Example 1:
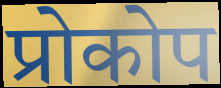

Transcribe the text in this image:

प्रोकोप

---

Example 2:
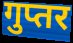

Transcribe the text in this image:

गुप्तर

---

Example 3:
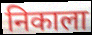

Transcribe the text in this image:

निकाला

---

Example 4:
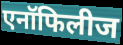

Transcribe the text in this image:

एनॉफिलीज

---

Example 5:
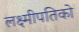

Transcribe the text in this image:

लक्ष्मीपतिको